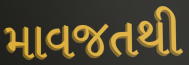
માવજતથી